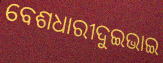
ବେଶଧାରୀଦୁଇଭାଇ